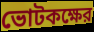
ভোটকক্ষের